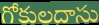
గోకులదాసు